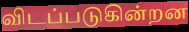
விடப்படுகின்றன